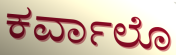
ಕರ್ವಾಲೊ